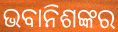
ଭବାନିଶଙ୍କର